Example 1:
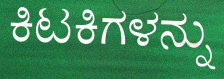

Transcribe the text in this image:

ಕಿಟಕಿಗಳನ್ನು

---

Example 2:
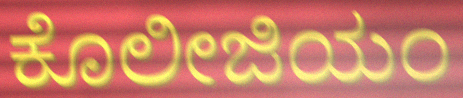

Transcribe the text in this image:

ಕೊಲೀಜಿಯಂ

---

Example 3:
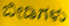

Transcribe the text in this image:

ಬೀಡಿಗಳು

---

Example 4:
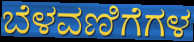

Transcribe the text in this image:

ಬೆಳವಣಿಗೆಗಳ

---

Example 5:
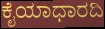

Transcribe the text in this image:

ಕೈಯಾಧಾರದಿ